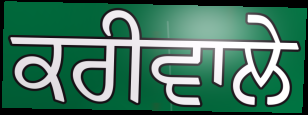
ਕਰੀਵਾਲੇ